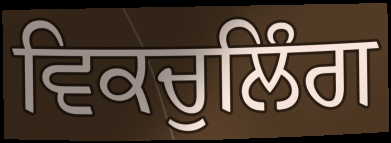
ਵਿਕਚੁਲਿੰਗ